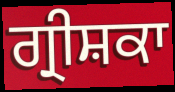
ਗ੍ਰੀਸ਼ਕਾ